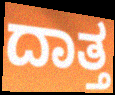
ದಾತ್ತ